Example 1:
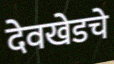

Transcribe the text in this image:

देवखेडचे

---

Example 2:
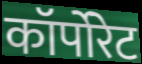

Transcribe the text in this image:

कॉर्पोरेट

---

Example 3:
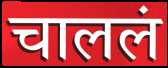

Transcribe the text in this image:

चाललं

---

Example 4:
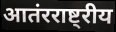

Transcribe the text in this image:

आतंरराष्ट्रीय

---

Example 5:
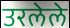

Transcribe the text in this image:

उरलेले